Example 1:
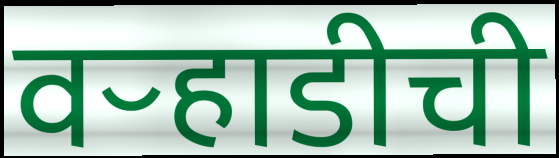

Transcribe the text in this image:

वऱ्हाडीची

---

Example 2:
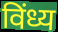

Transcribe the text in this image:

विंध्य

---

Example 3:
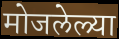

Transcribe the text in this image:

मोजलेल्या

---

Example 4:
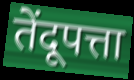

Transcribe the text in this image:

तेंदूपत्ता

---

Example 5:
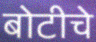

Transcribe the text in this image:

बोटीचे